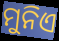
ମୁନିଏ